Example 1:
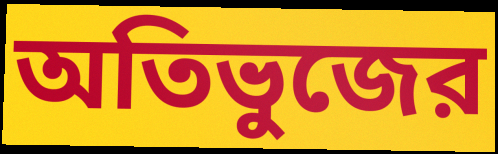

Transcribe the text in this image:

অতিভুজের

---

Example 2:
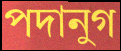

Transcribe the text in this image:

পদানুগ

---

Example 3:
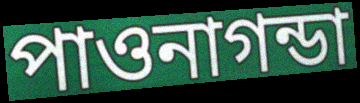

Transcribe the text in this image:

পাওনাগন্ডা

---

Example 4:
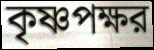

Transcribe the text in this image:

কৃষ্ণপক্ষর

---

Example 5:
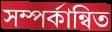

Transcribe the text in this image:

সম্পর্কান্বিত